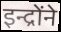
इन्द्रोंने